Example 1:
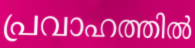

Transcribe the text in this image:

പ്രവാഹത്തിൽ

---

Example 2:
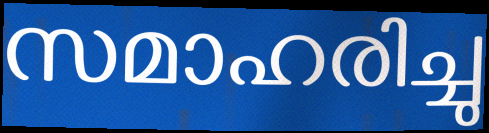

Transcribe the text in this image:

സമാഹരിച്ചു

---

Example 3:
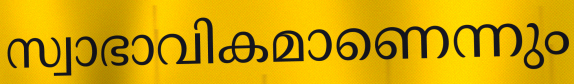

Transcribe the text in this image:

സ്വാഭാവികമാണെന്നും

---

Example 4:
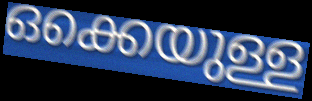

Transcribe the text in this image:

ഒക്കെയുള്ള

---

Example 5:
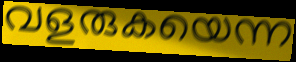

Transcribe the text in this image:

വളരുകയെന്ന